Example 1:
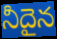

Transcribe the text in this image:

నీదైన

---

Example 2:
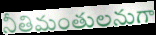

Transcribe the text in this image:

నీతిమంతులనుగా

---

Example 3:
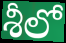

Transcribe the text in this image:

శీలో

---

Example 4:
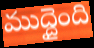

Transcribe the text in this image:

ముద్దైంది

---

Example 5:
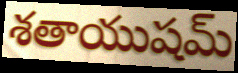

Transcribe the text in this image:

శతాయుషమ్